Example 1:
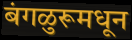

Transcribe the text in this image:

बंगळुरूमधून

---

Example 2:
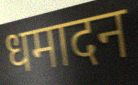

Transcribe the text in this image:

धमादन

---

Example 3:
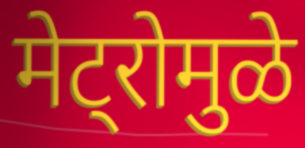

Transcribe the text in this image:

मेट्रोमुळे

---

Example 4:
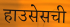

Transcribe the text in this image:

हाउसेसची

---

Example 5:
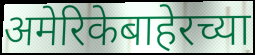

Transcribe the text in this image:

अमेरिकेबाहेरच्या